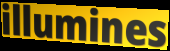
illumines